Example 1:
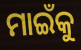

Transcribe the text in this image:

ମାଇଁକୁ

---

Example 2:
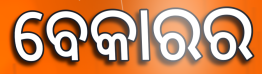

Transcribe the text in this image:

ବେକାରର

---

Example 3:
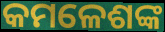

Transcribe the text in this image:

କମଳେଶଙ୍କ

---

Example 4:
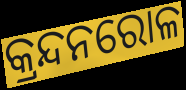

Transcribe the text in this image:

କ୍ରନ୍ଦନରୋଳ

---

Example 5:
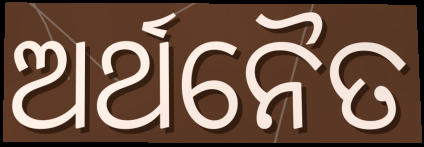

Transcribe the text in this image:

ଅର୍ଥନୈତ